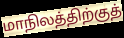
மாநிலத்திற்குத்